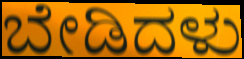
ಬೇಡಿದಳು